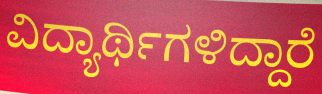
ವಿದ್ಯಾರ್ಥಿಗಳಿದ್ದಾರೆ